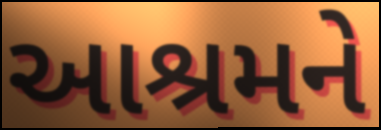
આશ્રમને